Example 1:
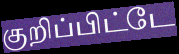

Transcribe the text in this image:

குறிப்பிட்டே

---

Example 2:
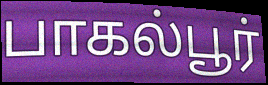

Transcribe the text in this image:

பாகல்பூர்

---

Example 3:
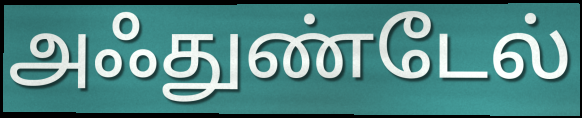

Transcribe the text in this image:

அஃதுண்டேல்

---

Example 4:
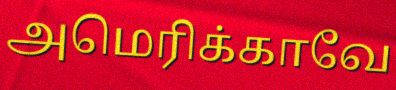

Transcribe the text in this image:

அமெரிக்காவே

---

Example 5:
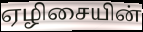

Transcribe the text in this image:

ஏழிசையின்